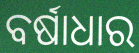
ବର୍ଷାଧାର